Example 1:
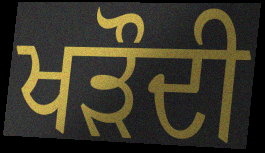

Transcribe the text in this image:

ਖੜੌਦੀ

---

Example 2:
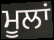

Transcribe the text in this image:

ਮੂਲਾਂ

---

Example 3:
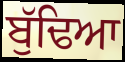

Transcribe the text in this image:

ਬੁੱਢਿਆ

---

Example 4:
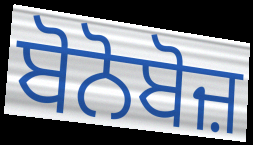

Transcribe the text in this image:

ਬੋਨੋਬੋਜ਼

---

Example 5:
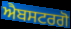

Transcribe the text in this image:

ਐਬਸਟਰਗੋ